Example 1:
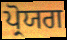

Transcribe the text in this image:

ਪ੍ਰੋਯਗ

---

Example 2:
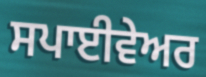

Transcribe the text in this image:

ਸਪਾਈਵੇਅਰ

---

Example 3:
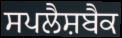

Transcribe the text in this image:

ਸਪਲੈਸ਼ਬੈਕ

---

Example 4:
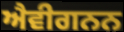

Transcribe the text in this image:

ਐਵੀਗਨਨ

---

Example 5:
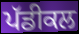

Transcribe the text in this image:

ਪੱਡੀਕਲ